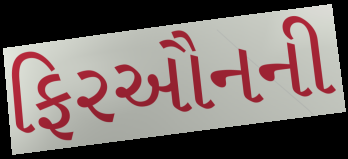
ફિરઔનની